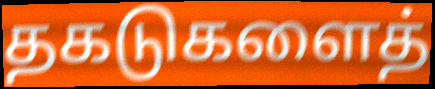
தகடுகளைத்